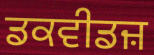
ਡਕਵੀਡਜ਼